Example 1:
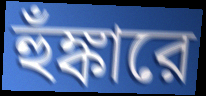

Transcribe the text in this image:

হুঁঙ্কারে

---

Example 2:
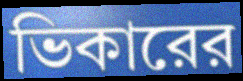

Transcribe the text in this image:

ভিকারের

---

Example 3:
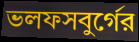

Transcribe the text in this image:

ভলফসবুর্গের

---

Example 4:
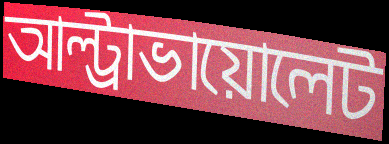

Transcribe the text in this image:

আল্ট্রাভায়োলেট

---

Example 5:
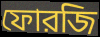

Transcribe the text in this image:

ফোরজি